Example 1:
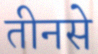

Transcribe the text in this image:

तीनसे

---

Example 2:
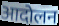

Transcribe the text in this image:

आदोलन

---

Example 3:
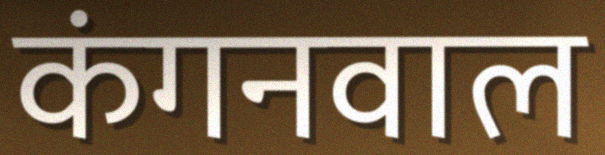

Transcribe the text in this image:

कंगनवाल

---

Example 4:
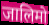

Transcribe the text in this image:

जालिमो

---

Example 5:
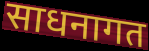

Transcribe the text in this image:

साधनागत